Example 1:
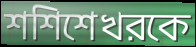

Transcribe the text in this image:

শশিশেখরকে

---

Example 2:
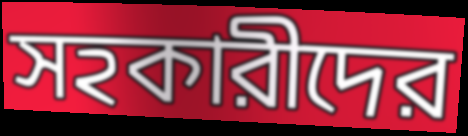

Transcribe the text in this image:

সহকারীদের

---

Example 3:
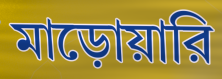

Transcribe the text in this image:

মাড়োয়ারি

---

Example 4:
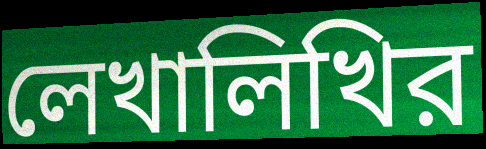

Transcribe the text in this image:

লেখালিখির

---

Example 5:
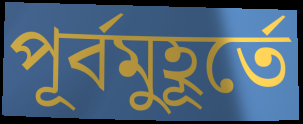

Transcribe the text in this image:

পূর্বমুহূর্তে